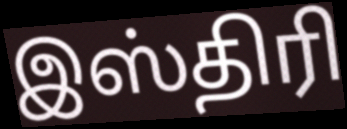
இஸ்திரி